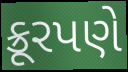
ક્રૂરપણે